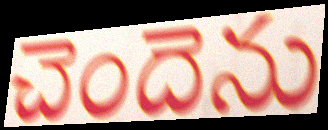
చెందెను